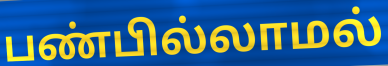
பண்பில்லாமல்